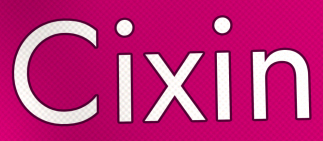
Cixin